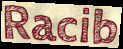
Racib